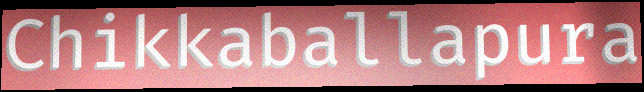
Chikkaballapura